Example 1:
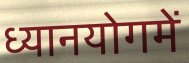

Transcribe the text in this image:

ध्यानयोगमें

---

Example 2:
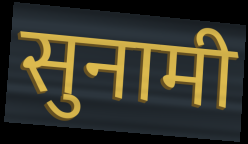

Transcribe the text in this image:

सुनामी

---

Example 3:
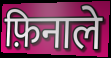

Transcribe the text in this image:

फ़िनाले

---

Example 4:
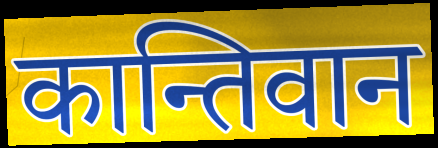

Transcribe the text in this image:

कान्तिवान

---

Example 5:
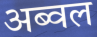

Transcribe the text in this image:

अब्वल